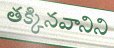
తక్కినవానిని